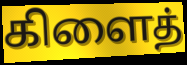
கிளைத்